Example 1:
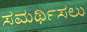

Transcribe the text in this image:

ಸಮರ್ಥಿಸಲು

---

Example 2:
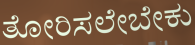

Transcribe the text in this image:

ತೋರಿಸಲೇಬೇಕು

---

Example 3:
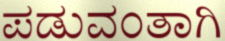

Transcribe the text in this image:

ಪಡುವಂತಾಗಿ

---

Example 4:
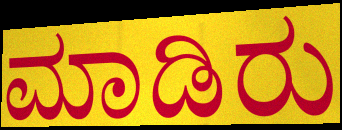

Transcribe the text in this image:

ಮಾಡಿರು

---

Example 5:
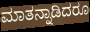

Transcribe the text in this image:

ಮಾತನ್ನಾಡಿದರೂ